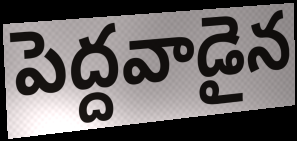
పెద్దవాడైన